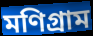
মণিগ্রাম